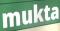
mukta